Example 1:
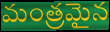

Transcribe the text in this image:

మంత్రమైన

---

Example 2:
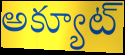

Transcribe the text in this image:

అక్యూట్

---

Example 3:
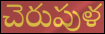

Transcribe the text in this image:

చెరుపుళ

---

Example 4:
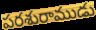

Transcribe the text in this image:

పరశురాముడు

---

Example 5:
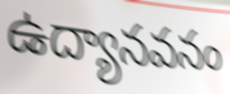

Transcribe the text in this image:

ఉద్యానవనం